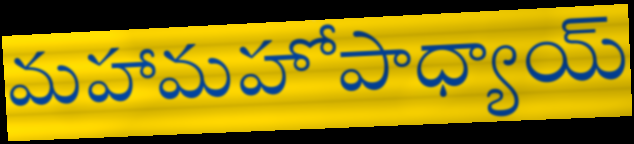
మహామహోపాధ్యాయ్